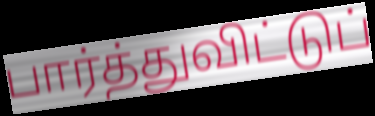
பார்த்துவிட்டுப்